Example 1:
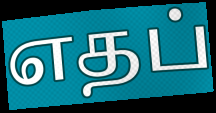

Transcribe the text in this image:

எதப்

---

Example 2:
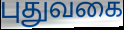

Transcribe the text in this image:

புதுவகை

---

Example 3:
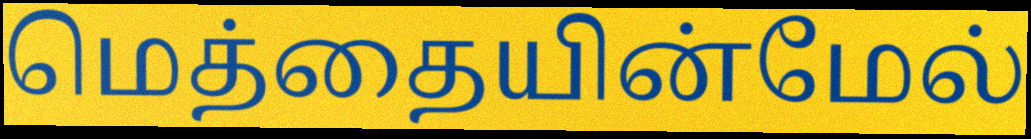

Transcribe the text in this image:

மெத்தையின்மேல்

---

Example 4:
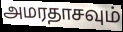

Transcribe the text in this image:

அமரதாசவும்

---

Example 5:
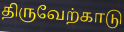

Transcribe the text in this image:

திருவேற்காடு